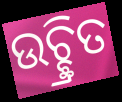
ଉଚ୍ଛ୍ରିତ